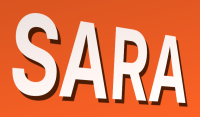
SARA